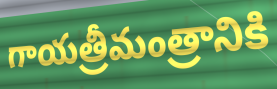
గాయత్రీమంత్రానికి